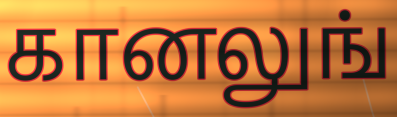
கானலுங்